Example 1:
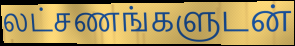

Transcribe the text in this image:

லட்சணங்களுடன்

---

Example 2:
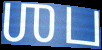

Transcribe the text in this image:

ஶப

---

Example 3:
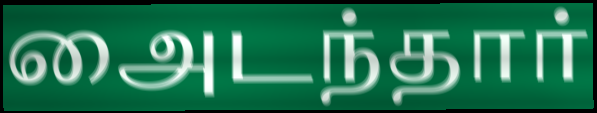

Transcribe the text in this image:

அைடந்தார்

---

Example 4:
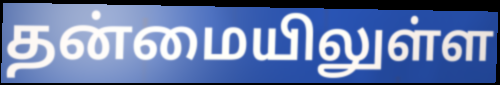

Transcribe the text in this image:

தன்மையிலுள்ள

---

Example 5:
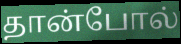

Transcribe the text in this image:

தான்போல்